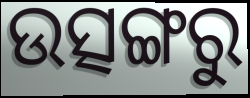
ଉତ୍ସଙ୍ଗରୁ